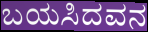
ಬಯಸಿದವನ